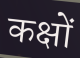
कक्षों